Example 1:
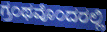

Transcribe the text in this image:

ಗ್ರಂಥವೊಂದರಲ್ಲಿ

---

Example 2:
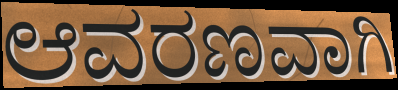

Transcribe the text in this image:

ಆವರಣವಾಗಿ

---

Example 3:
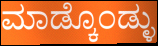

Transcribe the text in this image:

ಮಾಡ್ಕೊಂಡ್ಳು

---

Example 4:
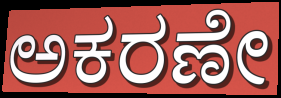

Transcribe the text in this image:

ಅಕರಣೇ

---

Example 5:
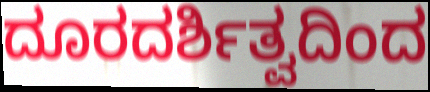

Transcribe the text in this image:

ದೂರದರ್ಶಿತ್ವದಿಂದ